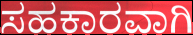
ಸಹಕಾರವಾಗಿ